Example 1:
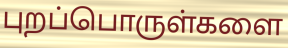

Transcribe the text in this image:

புறப்பொருள்களை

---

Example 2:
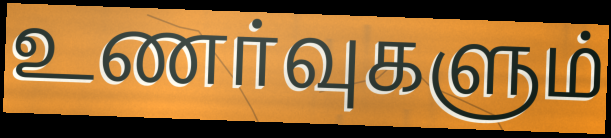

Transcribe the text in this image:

உணர்வுகளும்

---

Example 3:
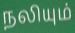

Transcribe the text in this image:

நலியும்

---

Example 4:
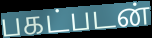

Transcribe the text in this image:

பகட்படன்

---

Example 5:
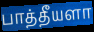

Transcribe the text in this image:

பாத்தீயளா